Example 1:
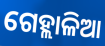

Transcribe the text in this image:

ଗେହ୍ଲାଳିଆ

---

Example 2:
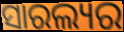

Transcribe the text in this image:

ସାରଲ୍ୟର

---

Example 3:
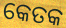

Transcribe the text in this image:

କେତକ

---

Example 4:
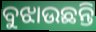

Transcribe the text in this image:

ବୁଝାଉଛନ୍ତି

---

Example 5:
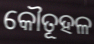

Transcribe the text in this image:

କୌତୂହଳ